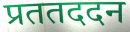
प्रततददन